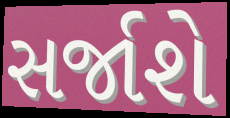
સર્જાશે